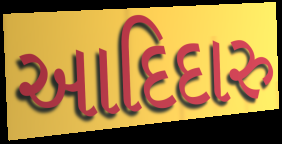
આદિદારુ